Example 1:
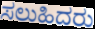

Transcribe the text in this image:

ಸಲುಹಿದರು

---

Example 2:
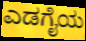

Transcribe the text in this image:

ಎಡಗೈಯ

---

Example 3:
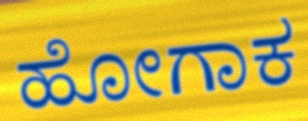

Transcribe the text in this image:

ಹೋಗಾಕ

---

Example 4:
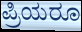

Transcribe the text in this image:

ಪ್ರಿಯರೂ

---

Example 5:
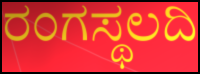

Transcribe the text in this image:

ರಂಗಸ್ಥಲದಿ